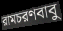
রামচরণবাবু